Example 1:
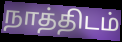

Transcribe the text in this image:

நாத்திடம்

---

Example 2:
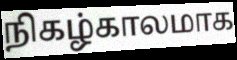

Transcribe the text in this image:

நிகழ்காலமாக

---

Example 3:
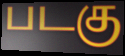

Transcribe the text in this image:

படகு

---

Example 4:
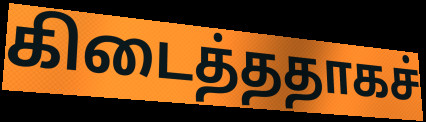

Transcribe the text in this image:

கிடைத்ததாகச்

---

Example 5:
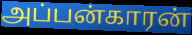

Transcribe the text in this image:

அப்பன்காரன்